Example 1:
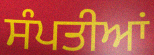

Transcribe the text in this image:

ਸੰਪਤੀਆਂ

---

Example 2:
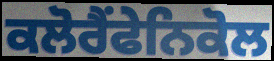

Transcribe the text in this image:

ਕਲੋਰੈਂਫੇਨਿਕੋਲ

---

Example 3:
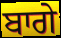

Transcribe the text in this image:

ਬਾਗੇ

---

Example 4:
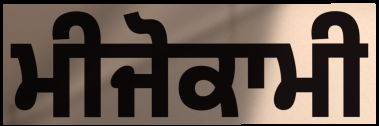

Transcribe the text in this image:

ਮੀਜੋਕਾਮੀ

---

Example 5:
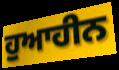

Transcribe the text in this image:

ਹੁਆਹੀਨ